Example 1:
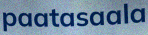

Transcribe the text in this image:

paatasaala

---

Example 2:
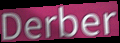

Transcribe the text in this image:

Derber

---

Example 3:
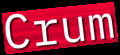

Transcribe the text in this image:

Crum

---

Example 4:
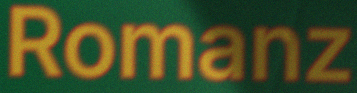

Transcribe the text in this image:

Romanz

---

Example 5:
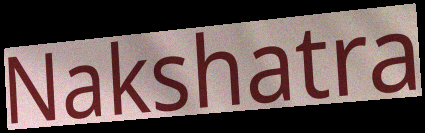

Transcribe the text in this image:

Nakshatra